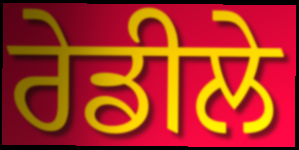
ਰੇਡੀਲੇ